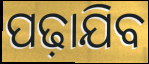
ପଢ଼ାଯିବ